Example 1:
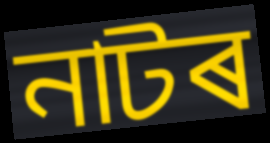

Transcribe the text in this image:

নাটৰ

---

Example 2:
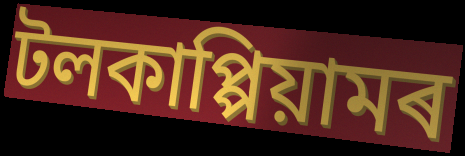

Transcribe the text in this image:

টলকাপ্পিয়ামৰ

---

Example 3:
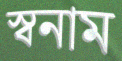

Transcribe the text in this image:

স্বনাম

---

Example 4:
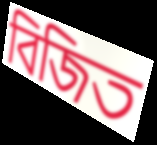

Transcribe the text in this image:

বিজিত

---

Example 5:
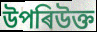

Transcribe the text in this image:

উপৰিউক্ত